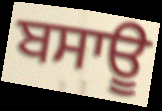
ਬਸਾਊ